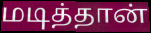
மடித்தான்